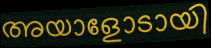
അയാളോടായി